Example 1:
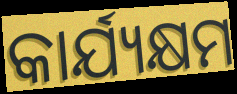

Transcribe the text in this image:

କାର୍ଯ୍ୟକ୍ଷମ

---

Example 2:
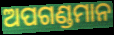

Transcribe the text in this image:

ଅପଗଣ୍ଡମାନ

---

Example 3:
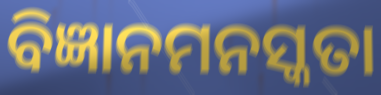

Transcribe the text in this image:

ବିଜ୍ଞାନମନସ୍କତା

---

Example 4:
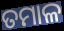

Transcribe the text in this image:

ତମାଳ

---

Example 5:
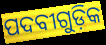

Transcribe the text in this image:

ପଦବୀଗୁଡ଼ିକ